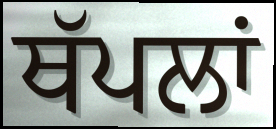
ਥੱਪਲਾਂ